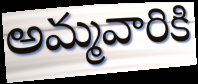
అమ్మవారికి